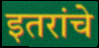
इतरांचे